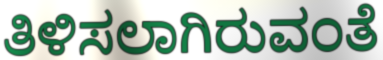
ತಿಳಿಸಲಾಗಿರುವಂತೆ